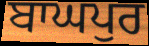
ਬਾਘਪੁਰ